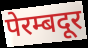
पेरम्बदूर